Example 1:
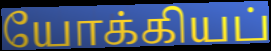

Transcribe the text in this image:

யோக்கியப்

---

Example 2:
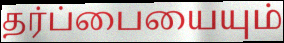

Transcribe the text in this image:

தர்ப்பையையும்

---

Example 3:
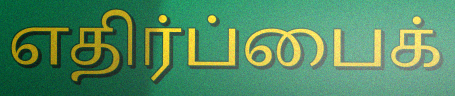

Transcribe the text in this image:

எதிர்ப்பைக்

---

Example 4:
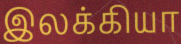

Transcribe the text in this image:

இலக்கியா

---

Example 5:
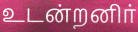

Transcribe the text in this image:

உடன்றனிர்